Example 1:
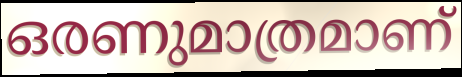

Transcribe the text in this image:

ഒരണുമാത്രമാണ്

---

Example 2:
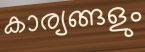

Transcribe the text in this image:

കാര്യങ്ങളും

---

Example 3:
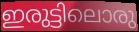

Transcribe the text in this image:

ഇരുട്ടിലൊരു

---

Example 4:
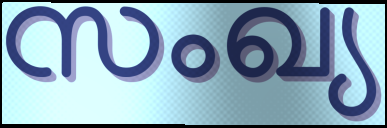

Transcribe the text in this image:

സംഖ്യ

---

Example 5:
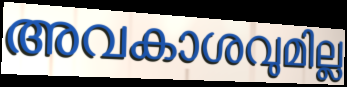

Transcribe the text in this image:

അവകാശവുമില്ല